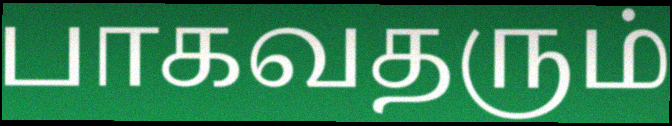
பாகவதரும்